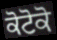
ਕੋਟੋਕੋ